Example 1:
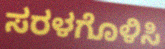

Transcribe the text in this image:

ಸರಳಗೊಳಿಸಿ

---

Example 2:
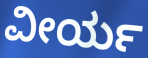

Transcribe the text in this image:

ವೀರ್ಯ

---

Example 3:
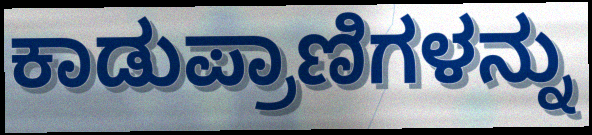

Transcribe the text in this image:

ಕಾಡುಪ್ರಾಣಿಗಳನ್ನು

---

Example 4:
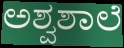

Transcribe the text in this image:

ಅಶ್ವಶಾಲೆ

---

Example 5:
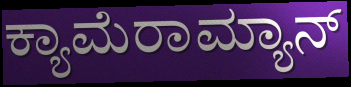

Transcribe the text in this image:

ಕ್ಯಾಮೆರಾಮ್ಯಾನ್